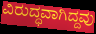
ವಿರುದ್ಧವಾಗಿದ್ದವು